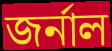
জৰ্নাল